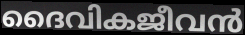
ദൈവികജീവൻ